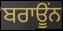
ਬਰਾਊਂਨ